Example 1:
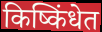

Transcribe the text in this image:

किष्किंधेत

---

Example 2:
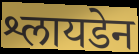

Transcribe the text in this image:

श्लायडेन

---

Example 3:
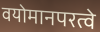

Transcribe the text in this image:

वयोमानपरत्वे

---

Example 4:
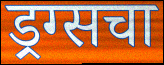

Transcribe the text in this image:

ड्रग्सचा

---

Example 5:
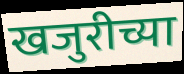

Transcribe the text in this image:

खजुरीच्या